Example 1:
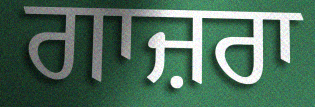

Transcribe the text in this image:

ਗਾਜ਼ਰਾ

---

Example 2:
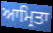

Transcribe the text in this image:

ਆਮ੍ਰਿਤਾ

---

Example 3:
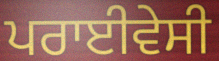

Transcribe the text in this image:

ਪਰਾਈਵੇਸੀ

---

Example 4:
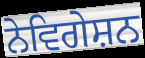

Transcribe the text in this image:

ਨੇਵਿਗੇਸ਼ਨ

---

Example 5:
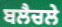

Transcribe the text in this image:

ਬਲੈਚਲੇ